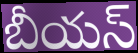
బీయస్